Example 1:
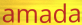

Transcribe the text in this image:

amada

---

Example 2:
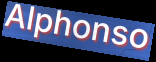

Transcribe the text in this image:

Alphonso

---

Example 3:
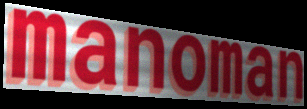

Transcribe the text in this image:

manoman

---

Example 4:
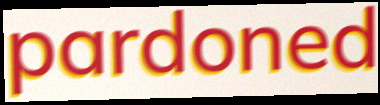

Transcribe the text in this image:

pardoned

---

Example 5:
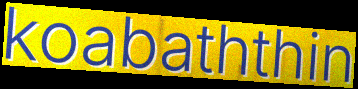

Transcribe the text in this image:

koabaththin